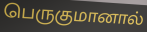
பெருகுமானால்